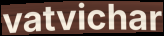
vatvichar